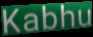
Kabhu